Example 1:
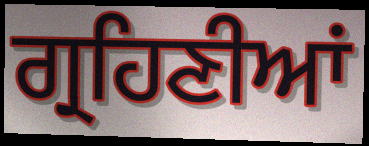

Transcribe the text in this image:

ਗ੍ਰਹਿਣੀਆਂ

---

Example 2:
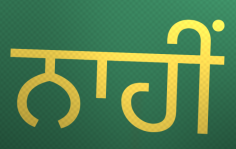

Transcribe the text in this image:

ਨਾਹੀਂ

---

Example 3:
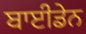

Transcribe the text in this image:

ਬਾਈਡੇਨ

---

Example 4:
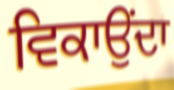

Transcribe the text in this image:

ਵਿਕਾਉੰਦਾ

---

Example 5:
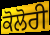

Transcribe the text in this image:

ਕੋਲੋਰੀ